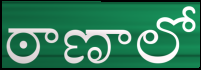
ఠాణాలో